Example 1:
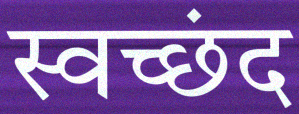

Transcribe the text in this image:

स्वच्छंद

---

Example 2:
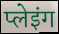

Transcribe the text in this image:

प्लेइंग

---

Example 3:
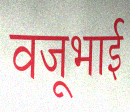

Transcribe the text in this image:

वजूभाई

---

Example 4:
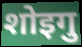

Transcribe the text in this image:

शोइगु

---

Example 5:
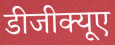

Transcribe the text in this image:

डीजीक्यूए